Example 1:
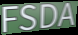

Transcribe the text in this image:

FSDA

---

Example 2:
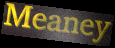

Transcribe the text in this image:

Meaney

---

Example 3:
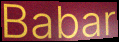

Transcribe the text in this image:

Babar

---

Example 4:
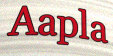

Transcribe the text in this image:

Aapla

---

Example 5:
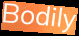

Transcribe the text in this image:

Bodily